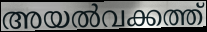
അയൽവക്കത്ത്